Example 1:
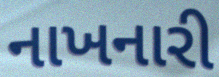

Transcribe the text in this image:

નાખનારી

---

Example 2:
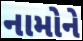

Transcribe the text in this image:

નામોને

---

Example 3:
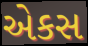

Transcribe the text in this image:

એકસ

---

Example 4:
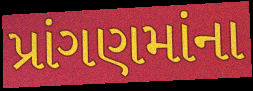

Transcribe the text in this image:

પ્રાંગણમાંના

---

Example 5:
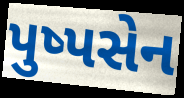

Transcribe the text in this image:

પુષ્પસેન